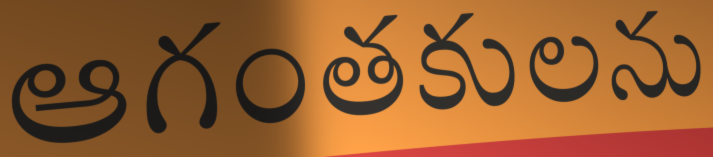
ఆగంతకులను